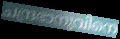
ചന്ദ്രഭാനുവിനെ